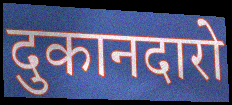
दुकानदारो